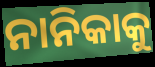
ନାନିକାକୁ